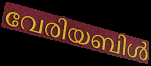
വേരിയബിൾ